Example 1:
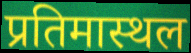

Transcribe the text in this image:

प्रतिमास्थल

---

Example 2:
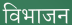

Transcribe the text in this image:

विभाजन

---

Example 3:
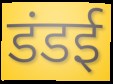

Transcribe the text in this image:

डंडई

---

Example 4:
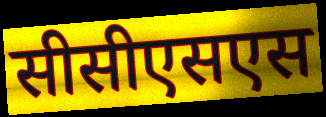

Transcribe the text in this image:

सीसीएसएस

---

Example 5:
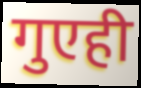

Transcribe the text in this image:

गुएही